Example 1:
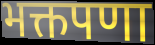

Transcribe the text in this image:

भक्तपणा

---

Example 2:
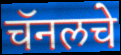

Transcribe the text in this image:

चॅनलचे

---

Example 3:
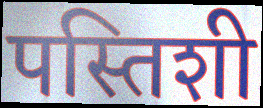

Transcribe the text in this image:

पस्तिशी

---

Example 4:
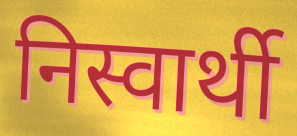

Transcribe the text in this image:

निस्वार्थी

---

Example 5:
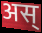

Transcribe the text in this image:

अस्